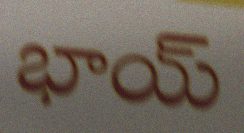
భాయ్